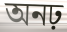
অনঢ়